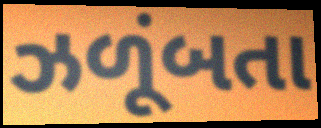
ઝળૂંબતા